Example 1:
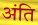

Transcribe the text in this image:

अंति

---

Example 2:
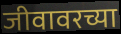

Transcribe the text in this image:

जीवावरच्या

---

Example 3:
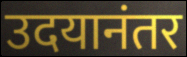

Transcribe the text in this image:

उदयानंतर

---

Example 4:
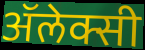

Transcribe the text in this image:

ॲलेक्सी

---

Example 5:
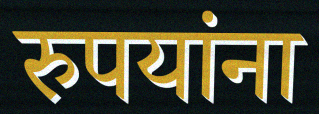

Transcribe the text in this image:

रुपयांना